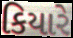
કિયારે